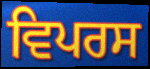
ਵਿਪਰਸ